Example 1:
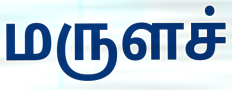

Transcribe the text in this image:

மருளச்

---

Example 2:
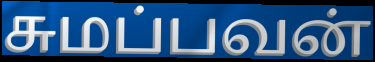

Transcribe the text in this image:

சுமப்பவன்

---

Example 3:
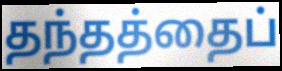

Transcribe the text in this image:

தந்தத்தைப்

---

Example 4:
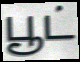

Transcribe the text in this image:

பூட்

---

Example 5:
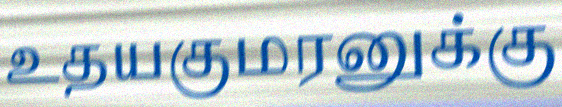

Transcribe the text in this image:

உதயகுமரனுக்கு